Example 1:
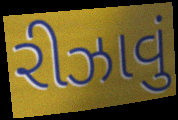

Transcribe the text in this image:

રીઝાવું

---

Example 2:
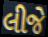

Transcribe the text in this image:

લીજે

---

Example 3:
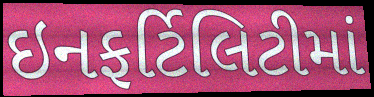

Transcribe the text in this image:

ઇનફર્ટિલિટીમાં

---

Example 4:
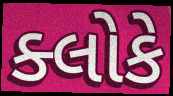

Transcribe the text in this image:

ક્લોકે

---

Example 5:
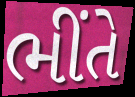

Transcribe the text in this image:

ભીંતે